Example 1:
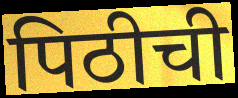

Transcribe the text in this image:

पिठीची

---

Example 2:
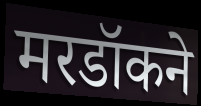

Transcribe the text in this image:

मरडॉकने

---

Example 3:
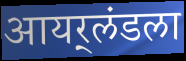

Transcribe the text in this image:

आयर्लंडला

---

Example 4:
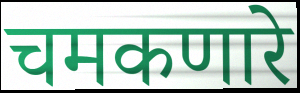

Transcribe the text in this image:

चमकणारे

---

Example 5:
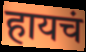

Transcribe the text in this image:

हायचं